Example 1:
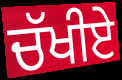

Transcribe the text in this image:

ਚੱਖੀਏ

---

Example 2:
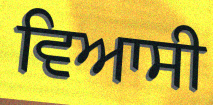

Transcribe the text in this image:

ਵਿਆਸੀ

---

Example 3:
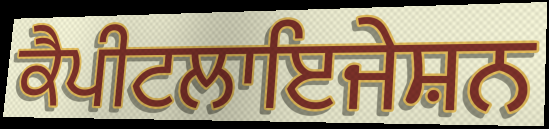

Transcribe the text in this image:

ਕੈਪੀਟਲਾਇਜੇਸ਼ਨ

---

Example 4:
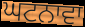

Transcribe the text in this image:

ਘਟਨਾਵਾ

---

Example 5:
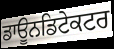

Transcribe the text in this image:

ਡਾਊਨਡਿਟੇਕਟਰ